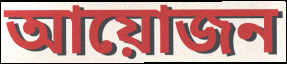
আয়োজন